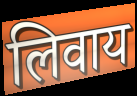
लिवाय